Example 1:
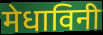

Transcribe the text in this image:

मेधाविनी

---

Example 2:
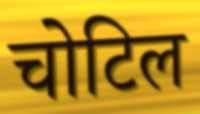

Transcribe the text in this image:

चोटिल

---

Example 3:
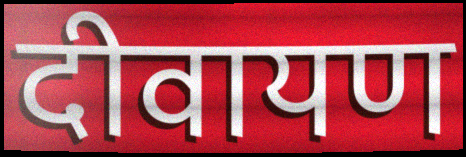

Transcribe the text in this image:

दीवायण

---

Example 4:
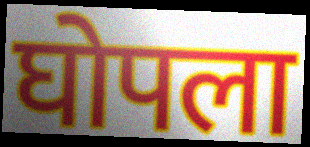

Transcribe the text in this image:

घोपला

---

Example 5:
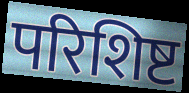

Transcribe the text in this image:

परिशिष्ट